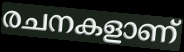
രചനകളാണ്